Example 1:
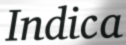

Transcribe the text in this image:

Indica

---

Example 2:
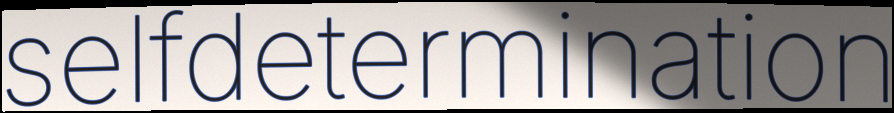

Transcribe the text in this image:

selfdetermination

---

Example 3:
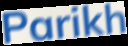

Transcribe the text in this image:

Parikh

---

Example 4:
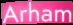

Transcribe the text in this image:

Arham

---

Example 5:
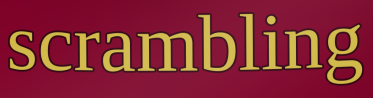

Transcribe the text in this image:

scrambling